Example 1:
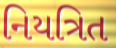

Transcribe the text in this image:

નિયત્રિત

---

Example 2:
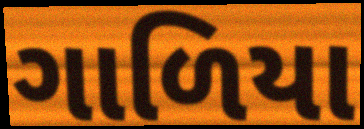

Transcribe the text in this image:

ગાળિયા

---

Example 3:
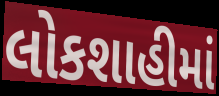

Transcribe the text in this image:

લોકશાહીમાં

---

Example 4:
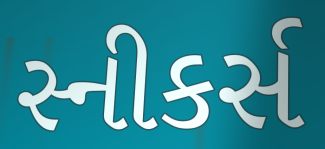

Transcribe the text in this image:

સ્નીકર્સ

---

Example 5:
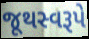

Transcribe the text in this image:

જૂથસ્વરૂપે